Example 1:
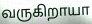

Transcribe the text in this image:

வருகிறாயா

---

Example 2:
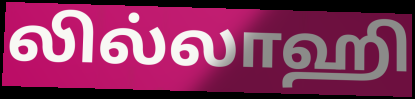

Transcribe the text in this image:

லில்லாஹி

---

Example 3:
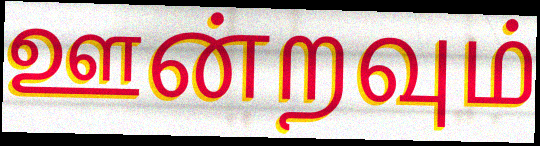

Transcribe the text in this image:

ஊன்றவும்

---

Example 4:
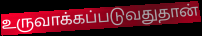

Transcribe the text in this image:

உருவாக்கப்படுவதுதான்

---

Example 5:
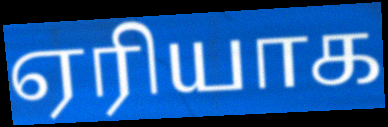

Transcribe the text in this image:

ஏரியாக